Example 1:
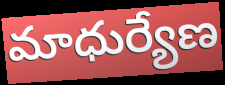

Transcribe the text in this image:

మాధుర్యేణ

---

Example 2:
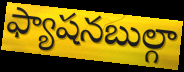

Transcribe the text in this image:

ఫ్యాషనబుల్గా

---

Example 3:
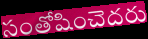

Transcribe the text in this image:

సంతోషించెదరు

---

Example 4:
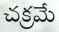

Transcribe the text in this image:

చక్రమే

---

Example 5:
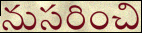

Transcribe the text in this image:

నుసరించి